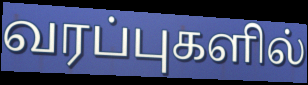
வரப்புகளில்